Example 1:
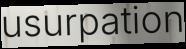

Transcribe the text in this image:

usurpation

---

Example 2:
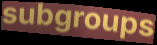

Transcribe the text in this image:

subgroups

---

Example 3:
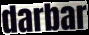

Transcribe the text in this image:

darbar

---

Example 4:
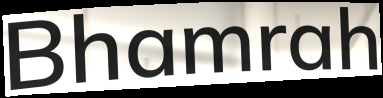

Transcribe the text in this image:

Bhamrah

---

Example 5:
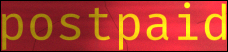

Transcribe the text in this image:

postpaid